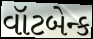
વૉટબેન્ક